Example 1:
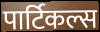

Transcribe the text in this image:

पार्टिकल्‍स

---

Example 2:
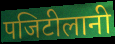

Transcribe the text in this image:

पजिटीलानी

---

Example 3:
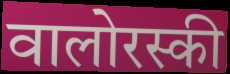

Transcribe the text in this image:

वालोरस्की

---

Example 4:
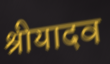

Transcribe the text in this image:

श्रीयादव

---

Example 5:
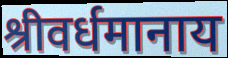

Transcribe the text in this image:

श्रीवर्धमानाय